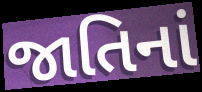
જાતિનાં